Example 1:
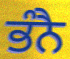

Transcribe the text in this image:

ਭੰਨੈ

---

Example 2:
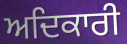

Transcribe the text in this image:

ਅਦਿਕਾਰੀ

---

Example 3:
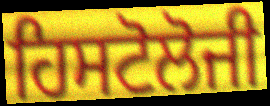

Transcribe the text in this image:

ਹਿਸਟੋਲੋਜੀ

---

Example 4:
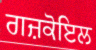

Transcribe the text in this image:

ਗਜ਼ਕੋਇਲ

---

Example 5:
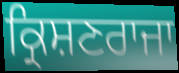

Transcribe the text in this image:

ਕ੍ਰਿਸ਼ਣਰਾਜਾ